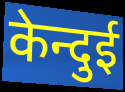
केन्दुई